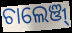
ଚାଲେଞ୍ଜ୍